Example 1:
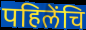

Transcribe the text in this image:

पहिलेंचि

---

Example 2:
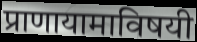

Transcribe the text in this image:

प्राणायामाविषयी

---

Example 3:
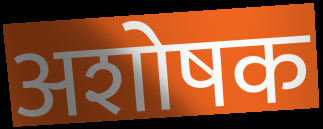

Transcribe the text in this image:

अशोषक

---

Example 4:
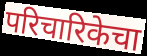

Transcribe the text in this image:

परिचारिकेचा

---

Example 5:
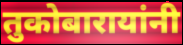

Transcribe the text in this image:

तुकोबारायांनी